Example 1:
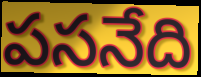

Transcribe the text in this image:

పసనేది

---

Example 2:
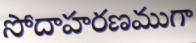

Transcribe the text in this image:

సోదాహరణముగా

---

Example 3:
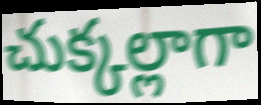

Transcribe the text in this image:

చుక్కల్లాగా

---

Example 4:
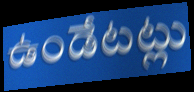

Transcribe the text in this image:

ఉండేటట్లు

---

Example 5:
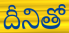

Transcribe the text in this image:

దీనితో